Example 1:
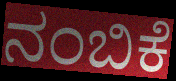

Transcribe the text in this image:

ನಂಬಿಕೆ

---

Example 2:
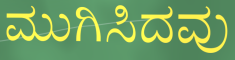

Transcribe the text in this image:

ಮುಗಿಸಿದವು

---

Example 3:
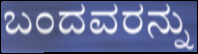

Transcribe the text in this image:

ಬಂದವರನ್ನು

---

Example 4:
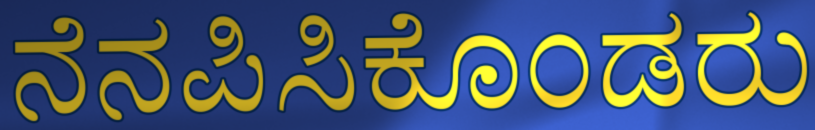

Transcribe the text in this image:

ನೆನಪಿಸಿಕೊಂಡರು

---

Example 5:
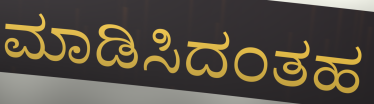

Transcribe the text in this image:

ಮಾಡಿಸಿದಂತಹ